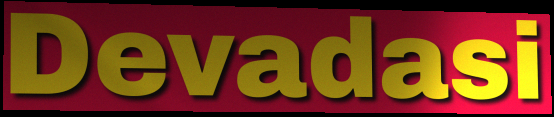
Devadasi